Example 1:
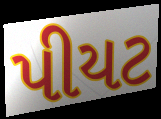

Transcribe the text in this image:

પીયટ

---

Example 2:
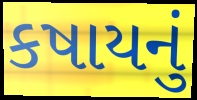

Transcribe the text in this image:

કષાયનું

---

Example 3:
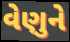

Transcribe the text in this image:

વેણુને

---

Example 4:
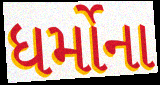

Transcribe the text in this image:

ધર્મોના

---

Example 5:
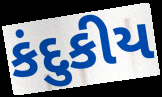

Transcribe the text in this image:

કંદુકીય